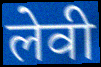
लेवी